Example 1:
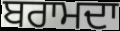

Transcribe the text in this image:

ਬਰਾਮਦਾ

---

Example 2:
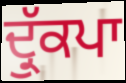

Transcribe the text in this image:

ਦ੍ਰੁੱਕਪਾ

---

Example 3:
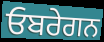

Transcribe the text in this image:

ਓਬਰੇਗਨ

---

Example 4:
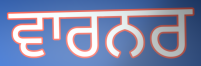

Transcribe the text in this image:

ਵਾਰਨਰ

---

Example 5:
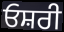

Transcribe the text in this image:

ਓਸ਼ਰੀ